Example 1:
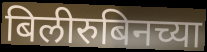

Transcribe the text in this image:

बिलीरुबिनच्या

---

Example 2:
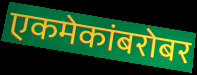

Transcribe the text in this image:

एकमेकांबरोबर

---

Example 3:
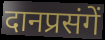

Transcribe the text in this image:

दानप्रसंगें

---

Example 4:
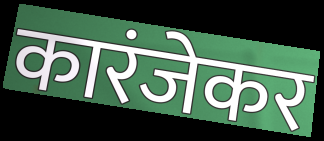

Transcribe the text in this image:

कारंजेकर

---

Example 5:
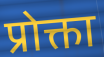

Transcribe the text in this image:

प्रोक्ता